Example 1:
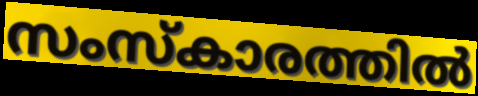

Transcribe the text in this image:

സംസ്കാരത്തിൽ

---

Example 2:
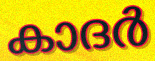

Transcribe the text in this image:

കാദർ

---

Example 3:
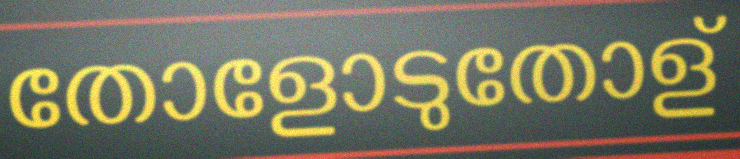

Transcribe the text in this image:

തോളോടുതോള്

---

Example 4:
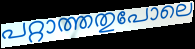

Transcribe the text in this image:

പറ്റാത്തതുപോലെ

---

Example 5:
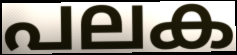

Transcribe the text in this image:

പലക